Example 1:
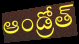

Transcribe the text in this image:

ఆండ్రోత్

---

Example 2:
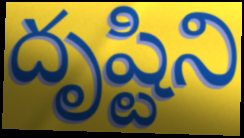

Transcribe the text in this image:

దృష్టిని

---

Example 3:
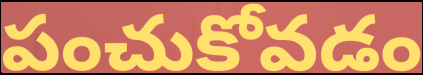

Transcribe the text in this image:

పంచుకోవడం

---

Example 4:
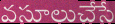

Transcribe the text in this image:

వసూలుచేసే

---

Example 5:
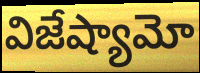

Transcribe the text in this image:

విజేష్యామో